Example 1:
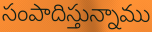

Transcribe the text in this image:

సంపాదిస్తున్నాము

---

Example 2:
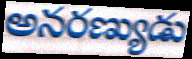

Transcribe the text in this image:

అనరణ్యుడు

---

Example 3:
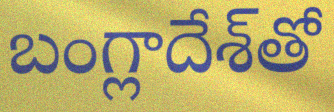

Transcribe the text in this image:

బంగ్లాదేశ్‌తో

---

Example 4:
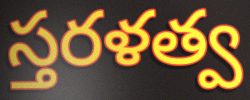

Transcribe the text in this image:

స్తరళత్వ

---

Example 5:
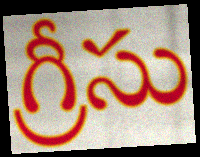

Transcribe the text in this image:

గ్రీసు